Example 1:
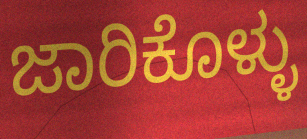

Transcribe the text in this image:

ಜಾರಿಕೊಳ್ಳು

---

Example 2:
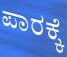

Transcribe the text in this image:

ಪಾರಕ್ಕೆ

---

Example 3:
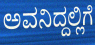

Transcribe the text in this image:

ಅವನಿದ್ದಲ್ಲಿಗೆ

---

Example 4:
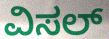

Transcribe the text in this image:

ವಿಸಲ್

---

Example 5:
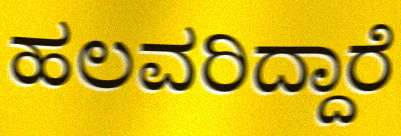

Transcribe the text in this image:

ಹಲವರಿದ್ದಾರೆ